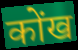
कोंख